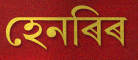
হেনৰিৰ